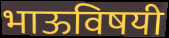
भाऊविषयी